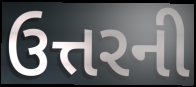
ઉત્તરની